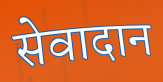
सेवादान